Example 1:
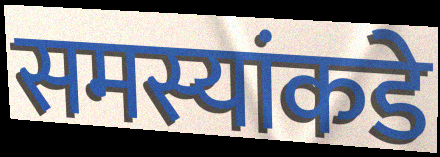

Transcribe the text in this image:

समस्यांकडे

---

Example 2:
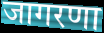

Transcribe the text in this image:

जागरणा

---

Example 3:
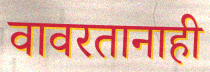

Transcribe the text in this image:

वावरतानाही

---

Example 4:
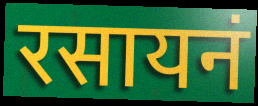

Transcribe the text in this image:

रसायनं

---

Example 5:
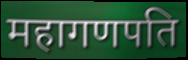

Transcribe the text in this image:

महागणपति